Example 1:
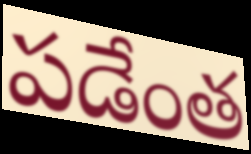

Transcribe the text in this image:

పడేంత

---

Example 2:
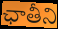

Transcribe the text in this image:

ఛాతీని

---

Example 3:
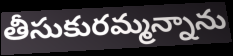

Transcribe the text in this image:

తీసుకురమ్మన్నాను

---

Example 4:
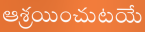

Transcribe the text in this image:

ఆశ్రయించుటయే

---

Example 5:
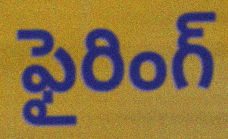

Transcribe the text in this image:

ఫైరింగ్